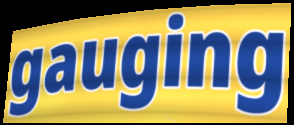
gauging